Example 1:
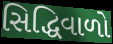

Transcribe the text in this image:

સિદ્ધિવાળો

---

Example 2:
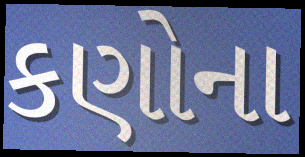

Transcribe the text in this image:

કણોના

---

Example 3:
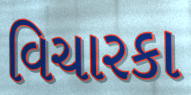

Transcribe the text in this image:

વિચારકા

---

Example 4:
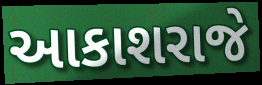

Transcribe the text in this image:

આકાશરાજે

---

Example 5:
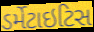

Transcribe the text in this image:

ડર્મેટાઇટિસ